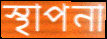
স্থাপনা